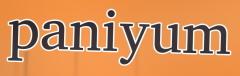
paniyum